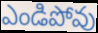
ఎండిపోవు